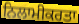
ਨਿਲਾਮੀਕਰਤਾ